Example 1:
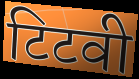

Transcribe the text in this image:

टिटवी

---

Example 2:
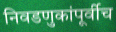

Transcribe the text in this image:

निवडणुकांपूर्वीच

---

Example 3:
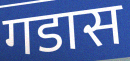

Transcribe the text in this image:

गडास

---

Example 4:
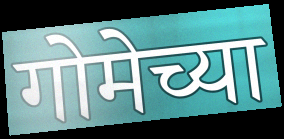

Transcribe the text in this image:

गोमेच्या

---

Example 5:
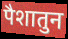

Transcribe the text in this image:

पैशातुन